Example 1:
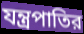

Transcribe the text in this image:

যন্ত্রপাতির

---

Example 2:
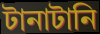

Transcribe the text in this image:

টানাটানি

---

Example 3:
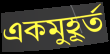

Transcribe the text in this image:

একমুহূর্ত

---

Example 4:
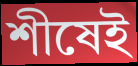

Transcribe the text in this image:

শীষেই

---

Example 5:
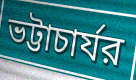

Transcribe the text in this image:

ভট্টাচার্যর